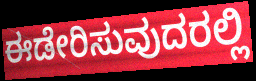
ಈಡೇರಿಸುವುದರಲ್ಲಿ